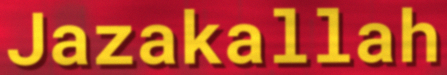
Jazakallah